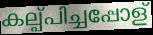
കല്പ്പിച്ചപ്പോള്